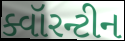
ક્વૉરન્ટીન